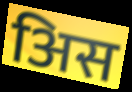
अिस